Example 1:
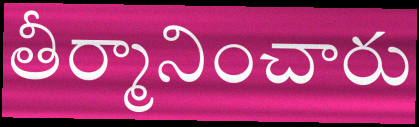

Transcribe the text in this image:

తీర్మానించారు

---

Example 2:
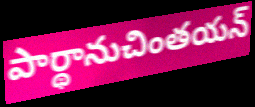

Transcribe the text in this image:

పార్థానుచింతయన్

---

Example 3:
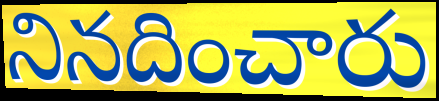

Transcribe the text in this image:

నినదించారు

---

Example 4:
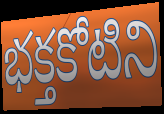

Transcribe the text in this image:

భక్తకోటిని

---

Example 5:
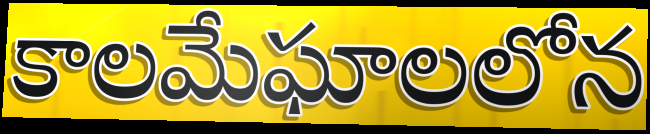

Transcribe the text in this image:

కాలమేఘాలలోన